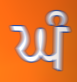
ਘੰ